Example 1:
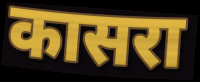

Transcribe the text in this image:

कासरा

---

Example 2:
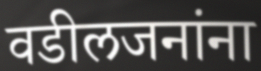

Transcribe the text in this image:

वडीलजनांना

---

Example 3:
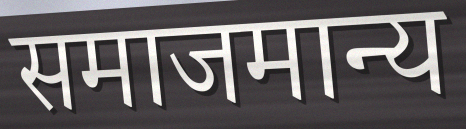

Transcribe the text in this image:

समाजमान्य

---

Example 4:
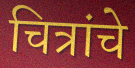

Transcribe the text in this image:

चित्रांचे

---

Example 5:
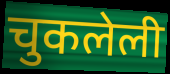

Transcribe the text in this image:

चुकलेली